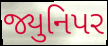
જ્યુનિપર